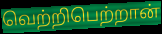
வெற்றிபெற்றான்